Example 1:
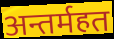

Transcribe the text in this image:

अन्तर्महत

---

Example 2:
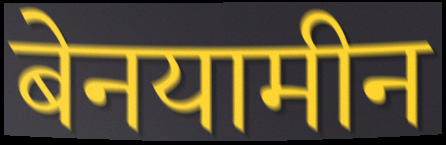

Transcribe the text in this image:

बेनयामीन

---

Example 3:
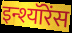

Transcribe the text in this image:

इन्श्यॉरेंस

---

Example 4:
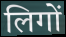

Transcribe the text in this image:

लिगों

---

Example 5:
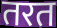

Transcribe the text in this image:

तरत